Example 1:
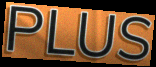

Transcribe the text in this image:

PLUS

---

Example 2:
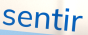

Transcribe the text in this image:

sentir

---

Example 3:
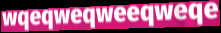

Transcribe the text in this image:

wqeqweqweeqweqe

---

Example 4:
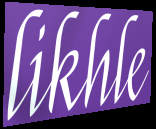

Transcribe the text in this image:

likhle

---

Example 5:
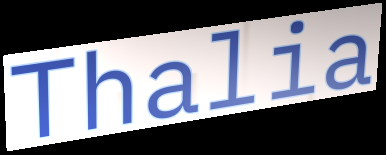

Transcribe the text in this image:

Thalia